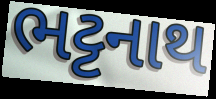
ભટ્ટનાથ